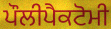
ਪੌਲੀਪੈਕਟੋਮੀ